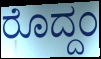
ರೊದ್ದಂ